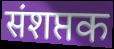
संशप्तक